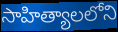
సాహిత్యాలలోని